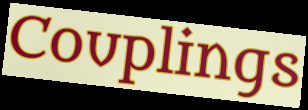
Couplings